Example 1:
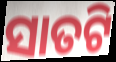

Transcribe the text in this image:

ସାତଟି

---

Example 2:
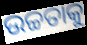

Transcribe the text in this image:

ଉଚ୍ଚତାକୁ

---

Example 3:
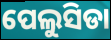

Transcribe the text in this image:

ପେଲୁସିଡା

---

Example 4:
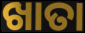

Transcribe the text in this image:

ଖାତା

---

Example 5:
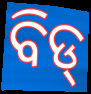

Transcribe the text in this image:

ବିଡ୍